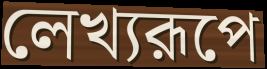
লেখ্যরূপে